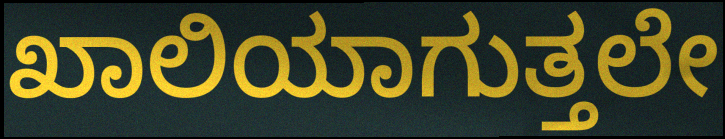
ಖಾಲಿಯಾಗುತ್ತಲೇ